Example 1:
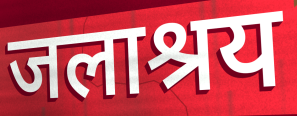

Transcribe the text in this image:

जलाश्रय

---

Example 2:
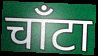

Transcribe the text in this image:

चाँटा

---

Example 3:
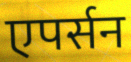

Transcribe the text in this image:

एपर्सन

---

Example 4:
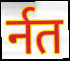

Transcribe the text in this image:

र्नत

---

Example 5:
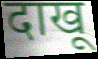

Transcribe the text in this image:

दाखू